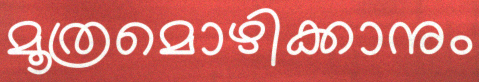
മൂത്രമൊഴിക്കാനും